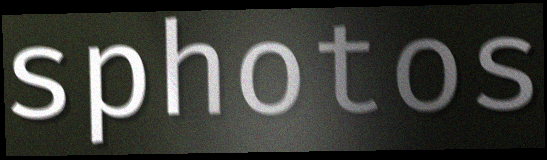
sphotos